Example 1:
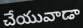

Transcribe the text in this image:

చేయువాడా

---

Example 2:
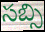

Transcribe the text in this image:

సబ్సి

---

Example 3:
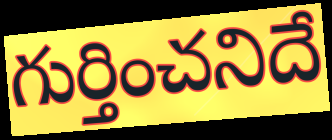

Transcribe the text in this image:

గుర్తించనిదే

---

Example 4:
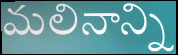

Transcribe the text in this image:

మలినాన్ని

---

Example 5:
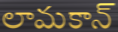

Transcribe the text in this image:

లామకాన్